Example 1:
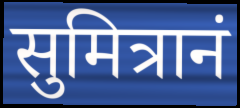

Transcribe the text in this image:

सुमित्रानं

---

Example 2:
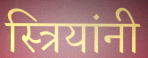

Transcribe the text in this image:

स्त्रियांनी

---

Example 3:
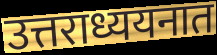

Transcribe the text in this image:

उत्तराध्ययनात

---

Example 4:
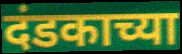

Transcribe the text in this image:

दंडकाच्या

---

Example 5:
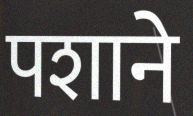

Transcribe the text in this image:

पशाने